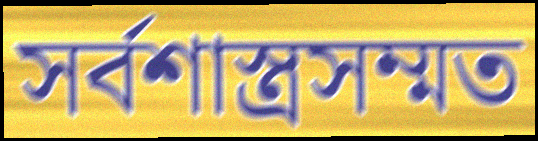
সর্বশাস্ত্রসম্মত